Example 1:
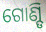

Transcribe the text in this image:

ଗୋଣ୍ଡି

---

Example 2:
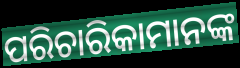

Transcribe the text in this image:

ପରିଚାରିକାମାନଙ୍କ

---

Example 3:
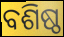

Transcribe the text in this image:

ବଶିଷ୍ଠ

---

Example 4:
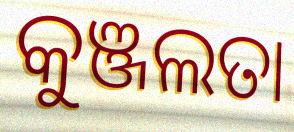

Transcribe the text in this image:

କୁଞ୍ଜଲତା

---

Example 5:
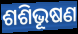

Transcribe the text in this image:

ଶଶିଭୂଷଣ